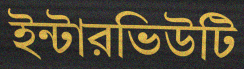
ইন্টারভিউটি